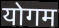
योगम